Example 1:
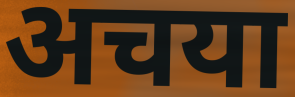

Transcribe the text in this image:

अचया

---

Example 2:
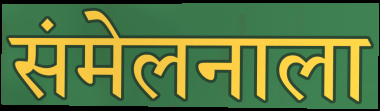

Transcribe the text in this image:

संमेलनाला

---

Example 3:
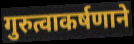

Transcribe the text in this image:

गुरुत्वाकर्षणाने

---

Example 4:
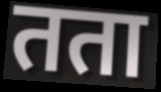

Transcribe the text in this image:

तता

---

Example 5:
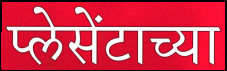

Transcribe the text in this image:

प्लेसेंटाच्या